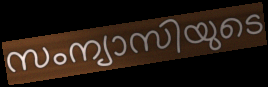
സംന്യാസിയുടെ